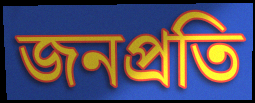
জনপ্রতি